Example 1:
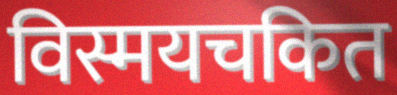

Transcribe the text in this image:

विस्मयचकित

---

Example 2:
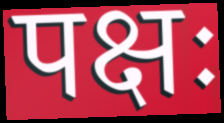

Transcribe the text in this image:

पक्षः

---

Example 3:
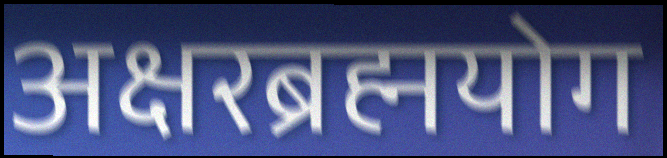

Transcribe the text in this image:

अक्षरब्रह्मयोग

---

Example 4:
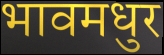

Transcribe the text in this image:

भावमधुर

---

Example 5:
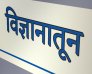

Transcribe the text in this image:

विज्ञानातून